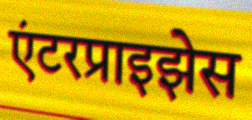
एंटरप्राइझेस